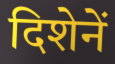
दिशेनें